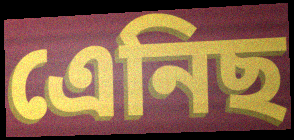
এেনিছ